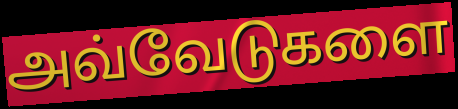
அவ்வேடுகளை